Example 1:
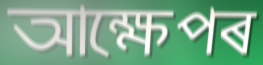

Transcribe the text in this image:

আক্ষেপৰ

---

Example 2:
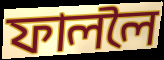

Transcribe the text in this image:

ফাললৈ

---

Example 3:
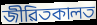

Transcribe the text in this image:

জীৱিতকালত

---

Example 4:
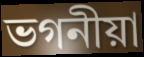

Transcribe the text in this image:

ভগনীয়া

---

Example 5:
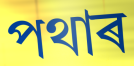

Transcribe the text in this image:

পথাৰ